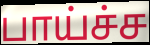
பாய்ச்ச